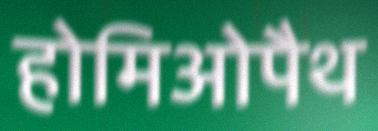
होमिओपैथ